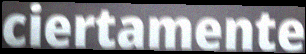
ciertamente